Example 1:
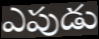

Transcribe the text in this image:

ఎపుడు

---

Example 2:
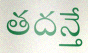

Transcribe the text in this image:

తదన్తే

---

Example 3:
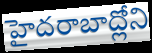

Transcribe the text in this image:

హైదరాబాద్లోని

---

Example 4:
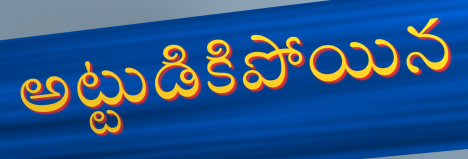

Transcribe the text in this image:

అట్టుడికిపోయిన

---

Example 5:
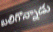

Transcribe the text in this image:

బలిగొన్నాడు